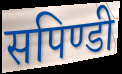
सपिण्डी